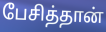
பேசித்தான்